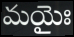
మయైః